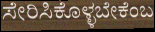
ಸೇರಿಸಿಕೊಳ್ಳಬೇಕೆಂಬ